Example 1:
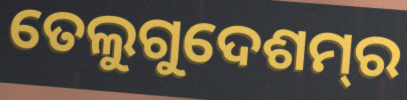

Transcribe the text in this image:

ତେଲୁଗୁଦେଶମ୍‌ର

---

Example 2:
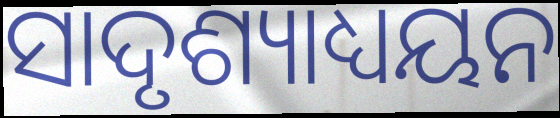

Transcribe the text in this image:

ସାଦୃଶ୍ୟାଧ୍ୟୟନ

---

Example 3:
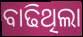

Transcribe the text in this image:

ବାଢିଥିଲା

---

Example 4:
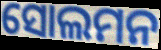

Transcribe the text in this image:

ସୋଲମନ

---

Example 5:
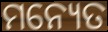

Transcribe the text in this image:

ମନ୍ୟେତ